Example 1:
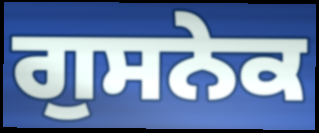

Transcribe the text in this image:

ਗੁਸਨੇਕ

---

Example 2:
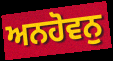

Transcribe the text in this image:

ਅਨਹੋਵਨੁ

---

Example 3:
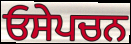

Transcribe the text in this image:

ਓਸੇਪਚਨ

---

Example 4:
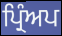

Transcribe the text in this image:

ਪ੍ਰਿੰਅਪ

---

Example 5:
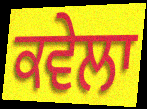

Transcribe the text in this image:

ਕਵੇਲਾ